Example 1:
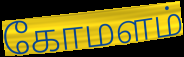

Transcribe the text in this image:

கோமளம்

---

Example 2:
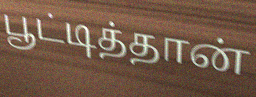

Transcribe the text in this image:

பூட்டித்தான்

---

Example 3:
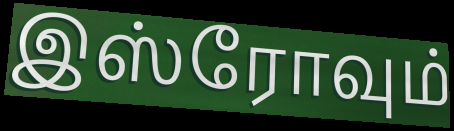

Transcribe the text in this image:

இஸ்ரோவும்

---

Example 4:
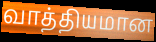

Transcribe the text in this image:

வாத்தியமான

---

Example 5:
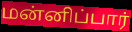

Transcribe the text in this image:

மன்னிப்பார்